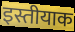
इस्तीयाक